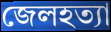
জেলহত্যা